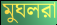
মুঘলরা